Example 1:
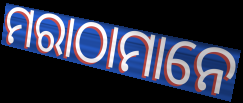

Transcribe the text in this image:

ମରାଠାମାନେ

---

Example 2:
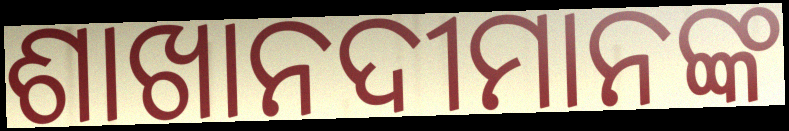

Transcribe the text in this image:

ଶାଖାନଦୀମାନଙ୍କ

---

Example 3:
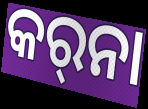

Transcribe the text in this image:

କର୍‌ନା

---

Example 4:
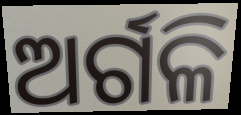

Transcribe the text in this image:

ଅର୍ଗଳି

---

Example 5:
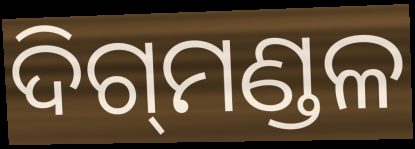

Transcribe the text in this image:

ଦିଗ୍‍ମଣ୍ଡଳ